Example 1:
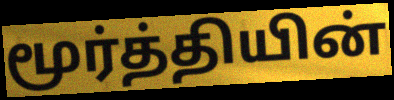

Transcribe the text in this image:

மூர்த்தியின்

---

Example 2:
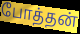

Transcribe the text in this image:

போத்தன்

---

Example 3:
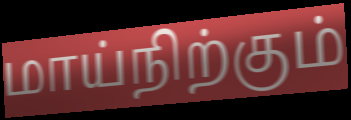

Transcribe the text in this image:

மாய்நிற்கும்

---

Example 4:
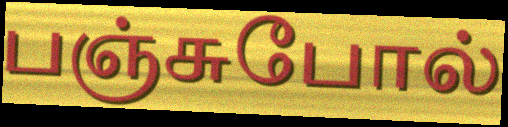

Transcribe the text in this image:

பஞ்சுபோல்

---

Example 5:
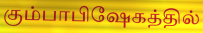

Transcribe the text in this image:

கும்பாபிஷேகத்தில்